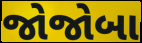
જોજોબા